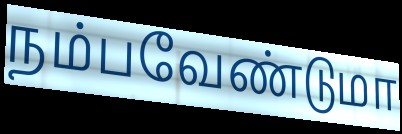
நம்பவேண்டுமா